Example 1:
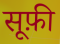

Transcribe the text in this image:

सूफ़ी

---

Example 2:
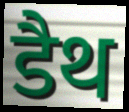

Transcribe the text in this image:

डैथ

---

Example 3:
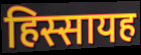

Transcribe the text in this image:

हिस्सायह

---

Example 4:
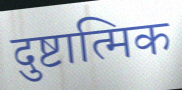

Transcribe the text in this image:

दुष्टात्मिक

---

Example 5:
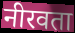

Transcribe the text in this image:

नीरवता